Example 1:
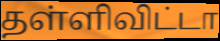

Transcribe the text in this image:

தள்ளிவிட்டா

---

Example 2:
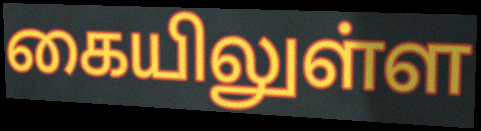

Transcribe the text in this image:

கையிலுள்ள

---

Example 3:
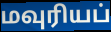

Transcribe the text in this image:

மவுரியப்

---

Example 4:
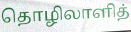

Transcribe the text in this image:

தொழிலாளித்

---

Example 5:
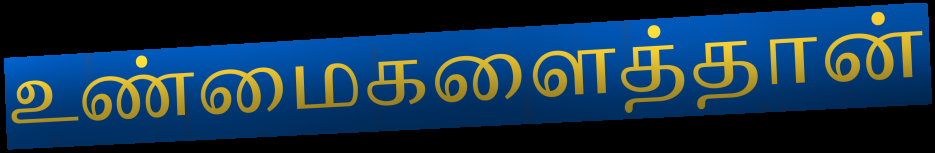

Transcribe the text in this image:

உண்மைகளைத்தான்